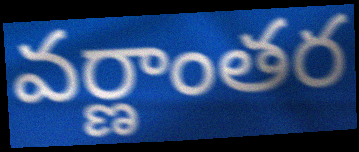
వర్ణాంతర